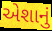
એશાનું